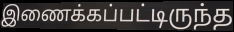
இணைக்கப்பட்டிருந்த